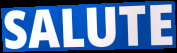
SALUTE